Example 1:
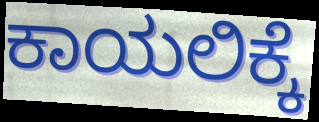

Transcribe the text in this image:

ಕಾಯಲಿಕ್ಕೆ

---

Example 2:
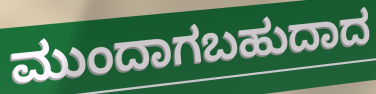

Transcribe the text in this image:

ಮುಂದಾಗಬಹುದಾದ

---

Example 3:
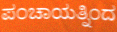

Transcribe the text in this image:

ಪಂಚಾಯತ್ನಿಂದ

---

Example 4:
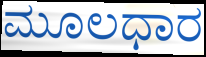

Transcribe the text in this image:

ಮೂಲಧಾರ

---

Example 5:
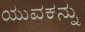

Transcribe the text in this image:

ಯುವಕನ್ನು